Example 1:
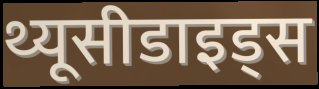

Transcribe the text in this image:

थ्यूसीडाइड्स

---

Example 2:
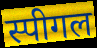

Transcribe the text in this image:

स्पीगल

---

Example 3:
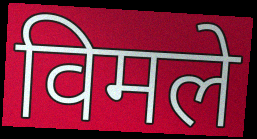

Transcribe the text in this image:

विमले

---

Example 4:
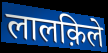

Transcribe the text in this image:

लालक़िले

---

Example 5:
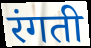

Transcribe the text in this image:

रंगती